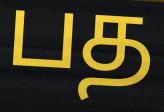
பத